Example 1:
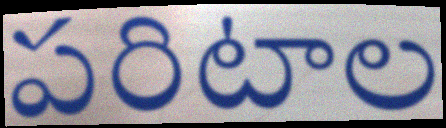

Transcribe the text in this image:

పరిటాల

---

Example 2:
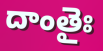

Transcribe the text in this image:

దాంతైః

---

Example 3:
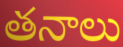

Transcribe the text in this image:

తనాలు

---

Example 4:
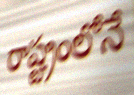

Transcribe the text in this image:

రాష్ట్రంలోనే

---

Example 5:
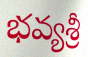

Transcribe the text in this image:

భవ్యశ్రీ